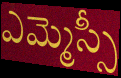
ఎమ్మెస్సీ